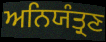
ਅਨਿਯੰਤ੍ਰਣ